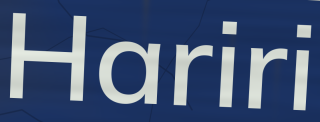
Hariri